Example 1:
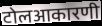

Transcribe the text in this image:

टोलआकारणी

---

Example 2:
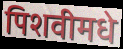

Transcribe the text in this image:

पिशवीमधे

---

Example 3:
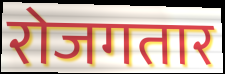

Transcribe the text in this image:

रोजगतार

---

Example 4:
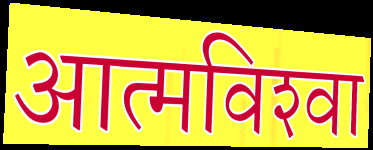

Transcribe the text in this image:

आत्मविश्वा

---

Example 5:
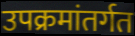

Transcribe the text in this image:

उपक्रमांतर्गत